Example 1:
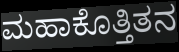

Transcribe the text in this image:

ಮಹಾಕೊತ್ತಿತನ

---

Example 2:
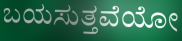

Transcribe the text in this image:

ಬಯಸುತ್ತವೆಯೋ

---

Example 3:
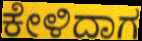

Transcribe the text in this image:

ಕೇಳಿದಾಗ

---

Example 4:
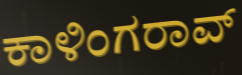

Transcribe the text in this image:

ಕಾಳಿಂಗರಾವ್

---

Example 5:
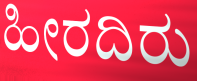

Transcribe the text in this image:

ಹೀರದಿರು